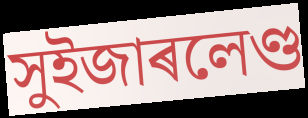
সুইজাৰলেণ্ড